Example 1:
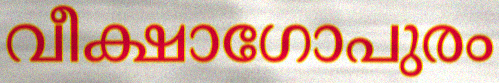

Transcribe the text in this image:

വീക്ഷാഗോപുരം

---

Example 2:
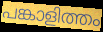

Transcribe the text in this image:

പങ്കാളിത്തം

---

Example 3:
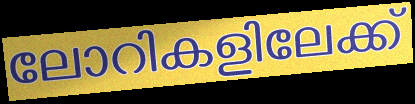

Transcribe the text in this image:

ലോറികളിലേക്ക്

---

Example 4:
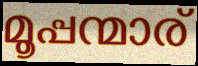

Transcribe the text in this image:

മൂപ്പന്മാര്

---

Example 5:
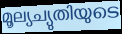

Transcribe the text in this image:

മൂല്യച്യുതിയുടെ